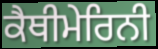
ਕੈਥੀਮੇਰਿਨੀ